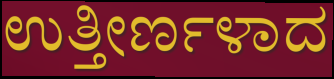
ಉತ್ತೀರ್ಣಳಾದ